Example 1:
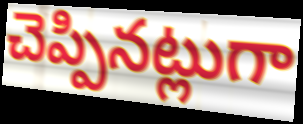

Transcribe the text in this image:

చెప్పినట్లుగా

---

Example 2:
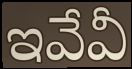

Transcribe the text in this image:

ఇవేవీ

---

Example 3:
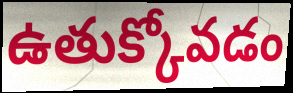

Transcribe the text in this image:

ఉతుక్కోవడం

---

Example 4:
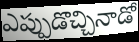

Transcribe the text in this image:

ఎప్పుడొచ్చినాడో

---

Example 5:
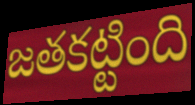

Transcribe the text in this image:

జతకట్టింది